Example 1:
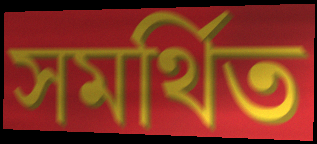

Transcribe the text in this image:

সমর্থিত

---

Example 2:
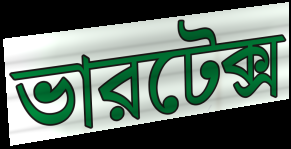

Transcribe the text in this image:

ভারটেক্স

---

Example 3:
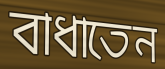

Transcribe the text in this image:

বাধাতেন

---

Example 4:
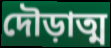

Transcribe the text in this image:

দৌড়াত্ম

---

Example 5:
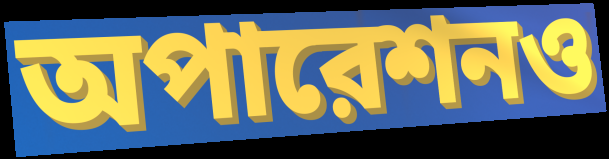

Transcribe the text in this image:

অপারেশনও